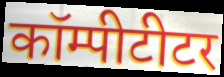
कॉम्पीटीटर